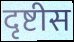
दृष्टीस